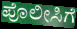
ಪೊಲೀಸಿಗೆ